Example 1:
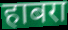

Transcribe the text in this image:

हाबरा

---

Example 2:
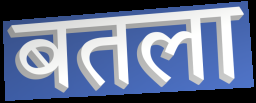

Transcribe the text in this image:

बतला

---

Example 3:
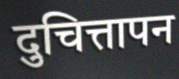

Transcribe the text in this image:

दुचित्तापन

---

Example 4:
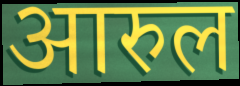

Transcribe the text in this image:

आरुल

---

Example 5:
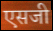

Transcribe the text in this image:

एसजी